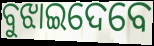
ବୁଝାଇଦେବେ